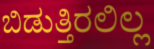
ಬಿಡುತ್ತಿರಲಿಲ್ಲ